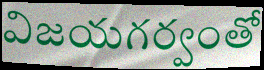
విజయగర్వంతో